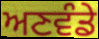
ਅਣਵੰਡੇ